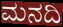
ಮನದಿ